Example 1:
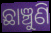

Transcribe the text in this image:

ଛାଞ୍ଚୁଣି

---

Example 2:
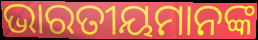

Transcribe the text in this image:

ଭାରତୀୟମାନଙ୍କ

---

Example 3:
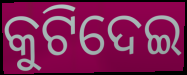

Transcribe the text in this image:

କୁଟିଦେଇ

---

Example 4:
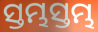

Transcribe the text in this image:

ସ୍ତମ୍ଭସ୍ତମ୍ଭ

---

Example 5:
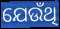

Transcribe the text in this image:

ଯେଉଁଥି